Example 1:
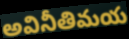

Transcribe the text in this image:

అవినీతిమయ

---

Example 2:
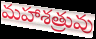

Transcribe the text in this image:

మహాశత్రువు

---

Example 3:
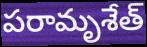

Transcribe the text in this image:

పరామృశేత్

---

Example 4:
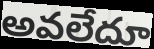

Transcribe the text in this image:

అవలేదూ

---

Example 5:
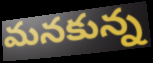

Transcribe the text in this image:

మనకున్న